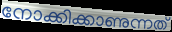
നോക്കിക്കാണുന്നത്